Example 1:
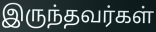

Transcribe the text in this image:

இருந்தவர்கள்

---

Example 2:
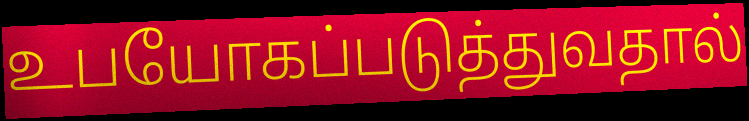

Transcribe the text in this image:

உபயோகப்படுத்துவதால்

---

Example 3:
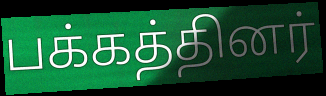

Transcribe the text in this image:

பக்கத்தினர்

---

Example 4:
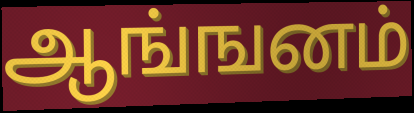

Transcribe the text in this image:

ஆங்ஙனம்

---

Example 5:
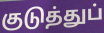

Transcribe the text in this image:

குடுத்துப்